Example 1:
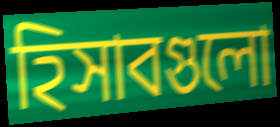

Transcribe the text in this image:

হিসাবগুলো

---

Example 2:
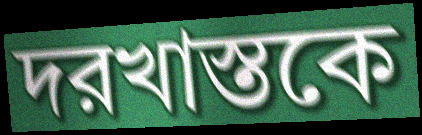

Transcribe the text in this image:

দরখাস্তকে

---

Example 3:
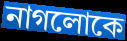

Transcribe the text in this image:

নাগলোকে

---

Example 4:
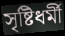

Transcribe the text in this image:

সৃষ্টিধর্মী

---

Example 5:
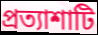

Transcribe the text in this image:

প্রত্যাশাটি